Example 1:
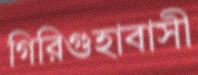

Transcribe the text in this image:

গিরিগুহাবাসী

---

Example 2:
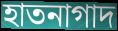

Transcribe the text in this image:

হাতনাগাদ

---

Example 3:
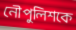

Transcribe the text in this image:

নৌপুলিশকে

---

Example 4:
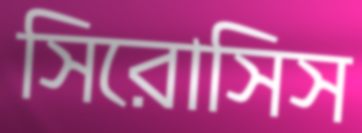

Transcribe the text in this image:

সিরোসিস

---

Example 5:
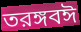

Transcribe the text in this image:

তরঙ্গবঈ